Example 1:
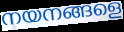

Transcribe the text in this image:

നയനങ്ങളെ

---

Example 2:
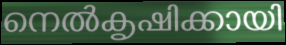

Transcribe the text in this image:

നെൽകൃഷിക്കായി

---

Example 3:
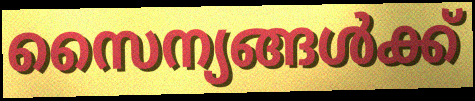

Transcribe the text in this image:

സൈന്യങ്ങൾക്ക്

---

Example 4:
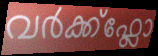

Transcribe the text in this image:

വർക്ക്ഫ്ലോ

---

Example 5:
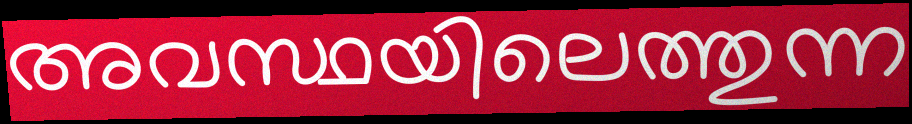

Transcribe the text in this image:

അവസ്ഥയിലെത്തുന്ന